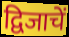
द्विजाचें